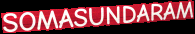
SOMASUNDARAM